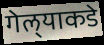
गेल्याकडे